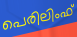
പെരിലിംഫ്